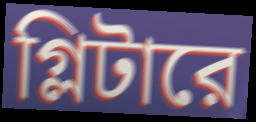
গ্লিটারে